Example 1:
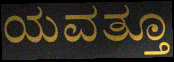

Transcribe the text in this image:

ಯವತ್ತೂ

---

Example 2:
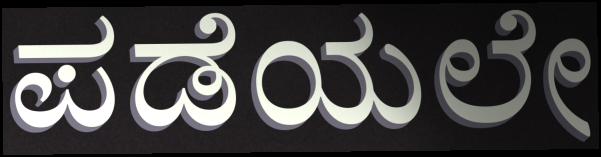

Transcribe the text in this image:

ಪಡೆಯಲೇ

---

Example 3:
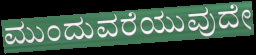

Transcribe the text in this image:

ಮುಂದುವರೆಯುವುದೇ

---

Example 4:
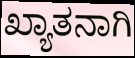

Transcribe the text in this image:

ಖ್ಯಾತನಾಗಿ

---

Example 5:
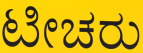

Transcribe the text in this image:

ಟೀಚರು